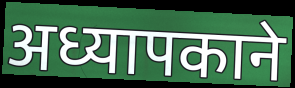
अध्यापकाने